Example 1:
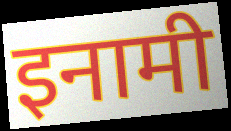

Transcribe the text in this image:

इनामी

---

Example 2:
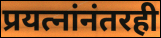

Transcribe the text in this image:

प्रयत्नांनंतरही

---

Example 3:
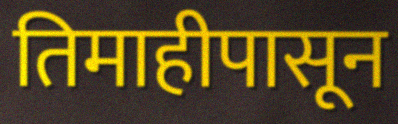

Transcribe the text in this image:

तिमाहीपासून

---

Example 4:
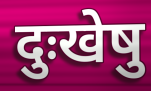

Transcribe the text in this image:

दुःखेषु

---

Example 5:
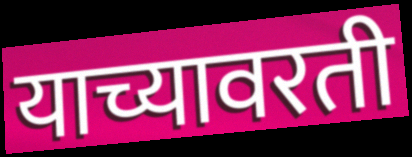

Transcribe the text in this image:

याच्यावरती